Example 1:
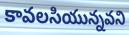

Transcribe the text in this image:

కావలసియున్నవని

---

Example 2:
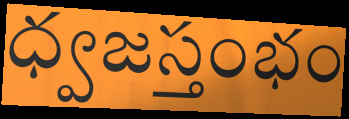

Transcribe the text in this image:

ధ్వజస్తంభం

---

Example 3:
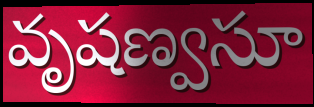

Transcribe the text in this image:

వృషణ్వసూ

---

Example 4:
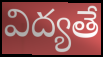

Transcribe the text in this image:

విద్యతే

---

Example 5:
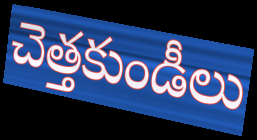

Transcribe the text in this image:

చెత్తకుండీలు